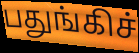
பதுங்கிச்